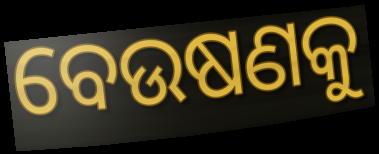
ବେଉଷଣକୁ